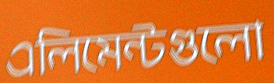
এলিমেন্টগুলো